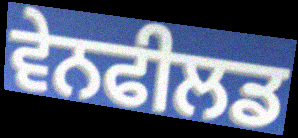
ਵੇਨਫੀਲਡ